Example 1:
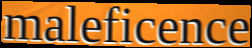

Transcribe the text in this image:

maleficence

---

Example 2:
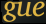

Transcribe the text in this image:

gue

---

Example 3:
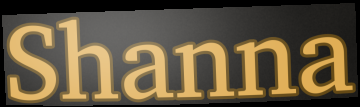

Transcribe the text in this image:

Shanna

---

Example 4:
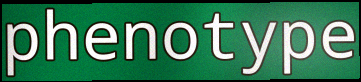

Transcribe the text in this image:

phenotype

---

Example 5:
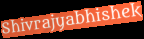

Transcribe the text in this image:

Shivrajyabhishek